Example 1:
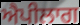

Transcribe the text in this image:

ਐਪੀਲਾਗ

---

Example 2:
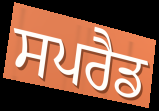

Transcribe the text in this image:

ਸਪਰੈਡ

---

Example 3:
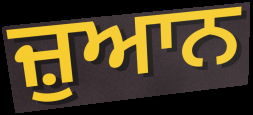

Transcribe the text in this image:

ਜ਼ੁਆਨ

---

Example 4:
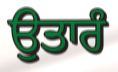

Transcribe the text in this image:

ਉਤਾਰੰ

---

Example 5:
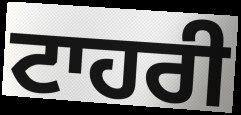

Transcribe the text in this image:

ਟਾਹਰੀ